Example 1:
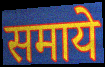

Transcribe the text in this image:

समाये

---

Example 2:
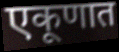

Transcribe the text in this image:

एकूणात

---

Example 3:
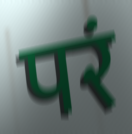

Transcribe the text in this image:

परं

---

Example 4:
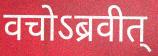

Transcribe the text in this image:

वचोऽब्रवीत्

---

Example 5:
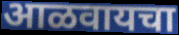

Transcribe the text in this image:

आळवायचा